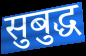
सुबुद्ध